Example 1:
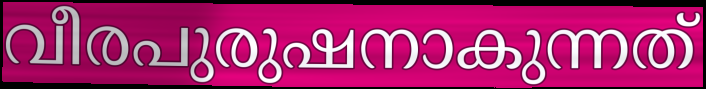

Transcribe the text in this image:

വീരപുരുഷനാകുന്നത്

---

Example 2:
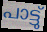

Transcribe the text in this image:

പാട്ടു്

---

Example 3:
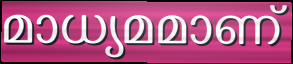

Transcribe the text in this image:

മാധ്യമമാണ്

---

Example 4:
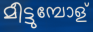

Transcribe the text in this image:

മീട്ടുമ്പോള്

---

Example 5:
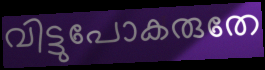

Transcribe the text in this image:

വിട്ടുപോകരുതേ